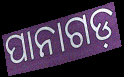
ପାନାଗଡ଼